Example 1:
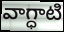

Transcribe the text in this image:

వాగ్ధాటి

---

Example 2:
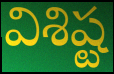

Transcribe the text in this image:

విశిష్ట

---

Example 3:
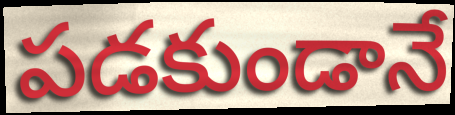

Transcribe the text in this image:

పడకుండానే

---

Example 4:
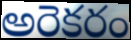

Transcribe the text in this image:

అరెకరం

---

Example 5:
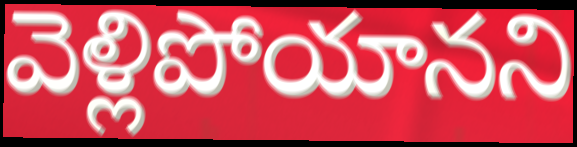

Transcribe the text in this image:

వెళ్లిపోయానని